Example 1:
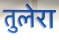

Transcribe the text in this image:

तुलेरा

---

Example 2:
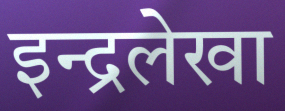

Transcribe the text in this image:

इन्द्रलेखा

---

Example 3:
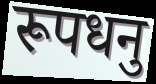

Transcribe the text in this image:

रूपधनु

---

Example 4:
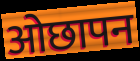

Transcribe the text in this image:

ओछापन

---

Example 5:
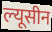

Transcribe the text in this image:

ल्यूसीन